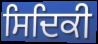
ਸਿਦਿਕੀ